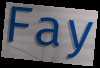
Fay